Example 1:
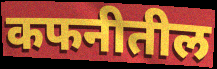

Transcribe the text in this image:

कफनीतील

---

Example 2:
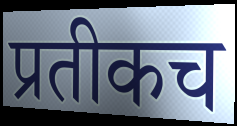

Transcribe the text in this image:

प्रतीकच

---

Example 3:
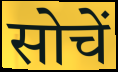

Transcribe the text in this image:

सोचें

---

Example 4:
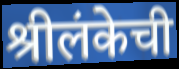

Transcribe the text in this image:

श्रीलंकेची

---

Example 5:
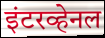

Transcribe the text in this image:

इंटरव्हेनल